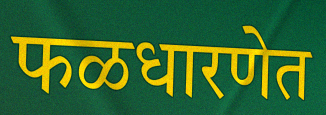
फळधारणेत